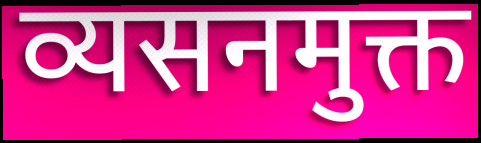
व्यसनमुक्त